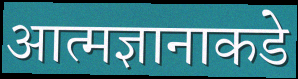
आत्मज्ञानाकडे